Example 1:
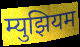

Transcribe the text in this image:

म्युझियम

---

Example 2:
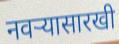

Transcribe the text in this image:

नवऱ्यासारखी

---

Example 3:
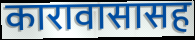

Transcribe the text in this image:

कारावासासह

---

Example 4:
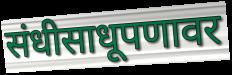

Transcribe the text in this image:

संधीसाधूपणावर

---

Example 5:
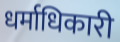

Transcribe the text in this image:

धर्माधिकारी